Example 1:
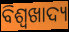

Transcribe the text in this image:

ବିଶ୍ୱଖାଦ୍ୟ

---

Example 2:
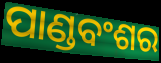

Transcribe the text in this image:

ପାଣ୍ଡବଂଶର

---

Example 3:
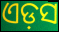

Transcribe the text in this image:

ଏଡ଼ସ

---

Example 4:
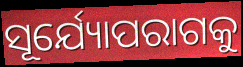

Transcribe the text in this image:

ସୂର୍ଯ୍ୟୋପରାଗକୁ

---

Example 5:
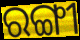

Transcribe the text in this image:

ରଙ୍ଗୀ